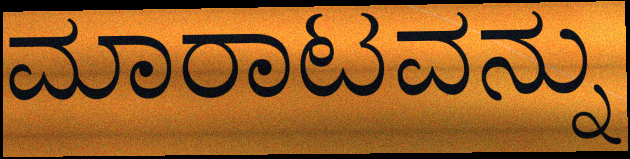
ಮಾರಾಟವನ್ನು